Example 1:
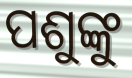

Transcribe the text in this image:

ପଶୁଙ୍କୁ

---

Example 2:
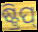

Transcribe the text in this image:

ଷ୍ଟ୍ରିପ୍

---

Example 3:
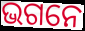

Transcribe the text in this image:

ଭଗନେ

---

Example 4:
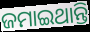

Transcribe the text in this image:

ଜମାଇଥାନ୍ତି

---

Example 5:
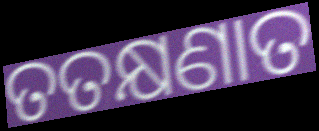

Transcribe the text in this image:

ତତକ୍ଷଣାତ